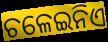
ଚଳେଇନିଏ